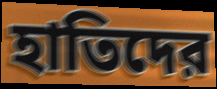
হাতিদের